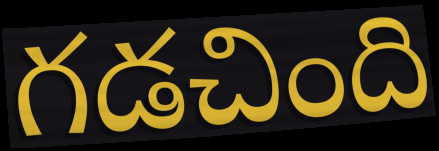
గడచింది